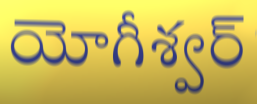
యోగీశ్వర్